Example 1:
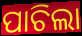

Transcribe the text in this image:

ପାଚିଲା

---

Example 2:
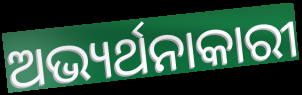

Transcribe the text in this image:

ଅଭ୍ୟର୍ଥନାକାରୀ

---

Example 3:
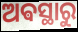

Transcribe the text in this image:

ଅଵସ୍ଥାରୁ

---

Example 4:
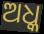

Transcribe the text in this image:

ଅଧ୍କ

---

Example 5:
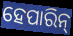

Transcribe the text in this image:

ହେପାରିନ୍